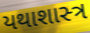
યથાશાસ્‍ત્ર